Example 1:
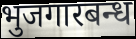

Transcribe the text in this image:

भुजगारबन्ध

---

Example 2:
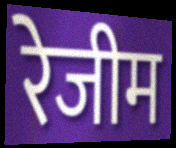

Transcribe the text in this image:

रेजीम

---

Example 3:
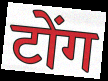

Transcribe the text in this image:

टोंग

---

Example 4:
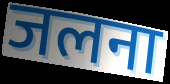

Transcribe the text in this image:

जलना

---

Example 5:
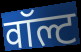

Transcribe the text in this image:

वॉल्ट